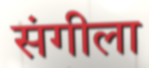
संगीला